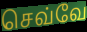
செவ்வே